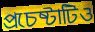
প্রচেষ্টাটিও